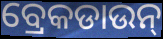
ବ୍ରେକଡାଉନ୍